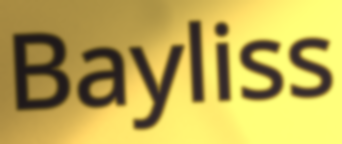
Bayliss